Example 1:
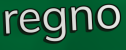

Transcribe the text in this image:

regno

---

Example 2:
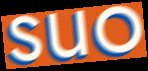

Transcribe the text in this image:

suo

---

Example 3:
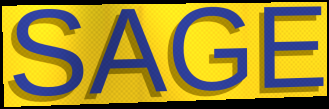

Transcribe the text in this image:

SAGE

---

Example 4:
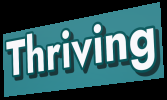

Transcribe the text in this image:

Thriving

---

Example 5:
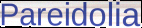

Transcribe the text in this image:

Pareidolia